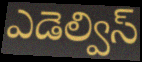
ఎడెల్విస్